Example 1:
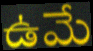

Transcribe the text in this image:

ఉమే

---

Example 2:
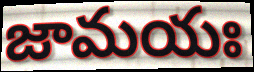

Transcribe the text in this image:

జామయః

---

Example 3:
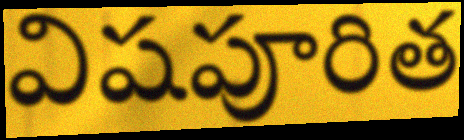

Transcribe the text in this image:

విషపూరిత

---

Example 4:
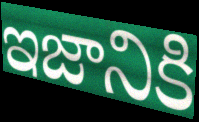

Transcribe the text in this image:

ఇజానికి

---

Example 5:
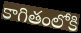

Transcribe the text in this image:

కాగితంలోకి